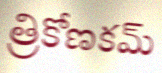
త్రికోణకమ్